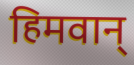
हिमवान्